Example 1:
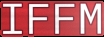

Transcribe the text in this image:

IFFM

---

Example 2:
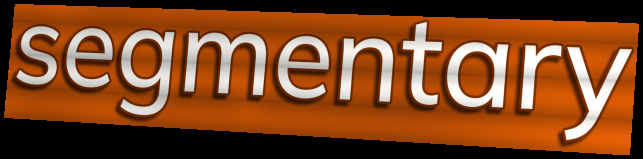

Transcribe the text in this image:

segmentary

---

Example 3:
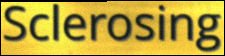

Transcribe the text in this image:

Sclerosing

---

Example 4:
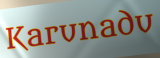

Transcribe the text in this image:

Karunadu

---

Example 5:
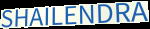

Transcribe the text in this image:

SHAILENDRA